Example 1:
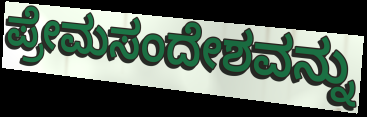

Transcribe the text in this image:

ಪ್ರೇಮಸಂದೇಶವನ್ನು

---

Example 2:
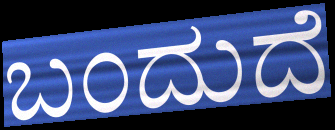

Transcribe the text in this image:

ಬಂದುದೆ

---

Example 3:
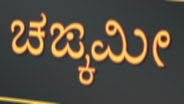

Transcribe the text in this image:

ಚಙ್ಕಮೀ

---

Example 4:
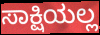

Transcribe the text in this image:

ಸಾಕ್ಷಿಯಲ್ಲ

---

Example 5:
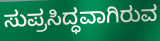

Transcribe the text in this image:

ಸುಪ್ರಸಿದ್ಧವಾಗಿರುವ